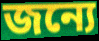
জন্যে